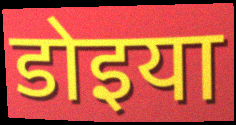
डोइया